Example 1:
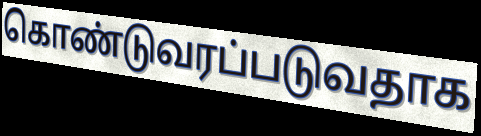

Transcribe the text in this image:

கொண்டுவரப்படுவதாக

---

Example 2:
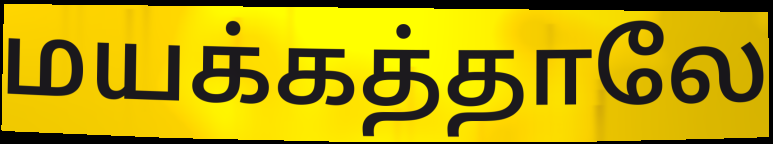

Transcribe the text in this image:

மயக்கத்தாலே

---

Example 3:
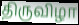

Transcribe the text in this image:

திருவிழா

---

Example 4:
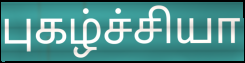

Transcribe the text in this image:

புகழ்ச்சியா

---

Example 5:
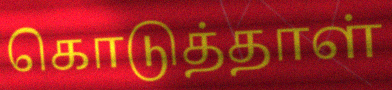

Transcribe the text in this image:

கொடுத்தாள்